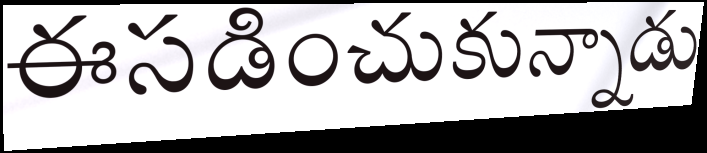
ఈసడించుకున్నాడు